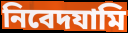
নিবেদযামি